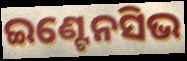
ଇଣ୍ଟେନସିଭ